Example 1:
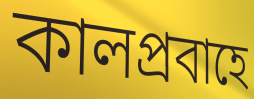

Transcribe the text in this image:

কালপ্রবাহে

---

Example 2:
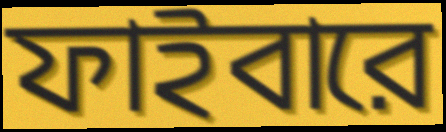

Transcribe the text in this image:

ফাইবারে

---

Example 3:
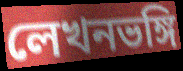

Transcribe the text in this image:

লেখনভঙ্গি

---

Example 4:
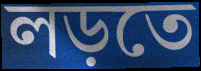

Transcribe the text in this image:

লড়তে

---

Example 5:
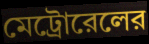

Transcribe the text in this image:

মেট্রোরেলের